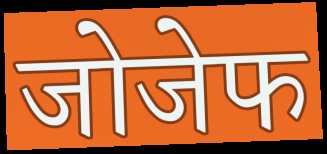
जोजेफ